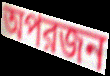
অপরজন